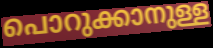
പൊറുക്കാനുള്ള